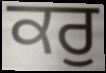
ਕਰੁ